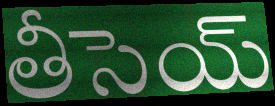
తీసెయ్